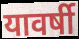
यावर्षी